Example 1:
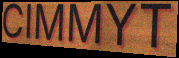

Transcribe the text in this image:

CIMMYT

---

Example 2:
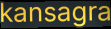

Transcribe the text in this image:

kansagra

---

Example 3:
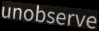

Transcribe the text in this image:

unobserve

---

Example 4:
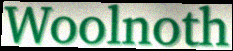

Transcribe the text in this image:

Woolnoth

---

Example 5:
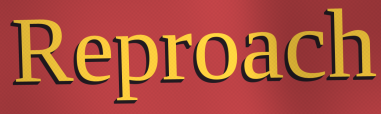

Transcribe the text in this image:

Reproach